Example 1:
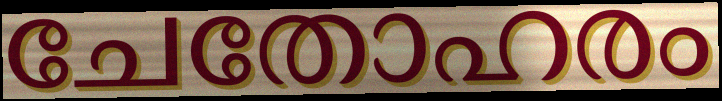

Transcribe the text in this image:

ചേതോഹരം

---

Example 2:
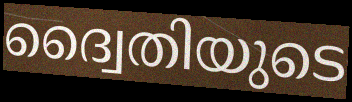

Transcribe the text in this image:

ദ്വൈതിയുടെ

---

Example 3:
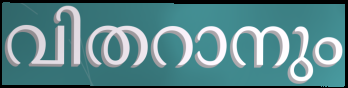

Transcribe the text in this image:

വിതറാനും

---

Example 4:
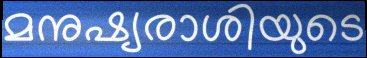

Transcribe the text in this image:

മനുഷ്യരാശിയുടെ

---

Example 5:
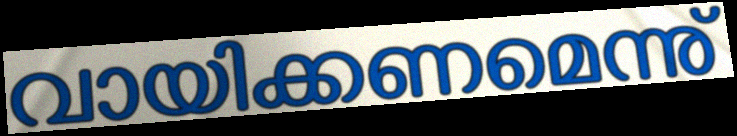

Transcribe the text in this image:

വായിക്കണമെന്നു്